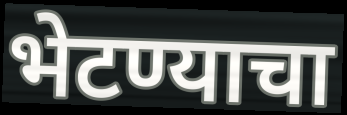
भेटण्याचा